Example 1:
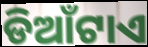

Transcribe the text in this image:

ଡିଆଁଟାଏ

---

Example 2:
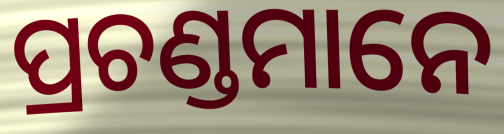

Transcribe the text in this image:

ପ୍ରଚଣ୍ଡମାନେ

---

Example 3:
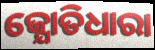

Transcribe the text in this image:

ଜ୍ଯୋତିଧାରା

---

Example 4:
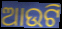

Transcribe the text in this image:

ଆଉଟି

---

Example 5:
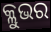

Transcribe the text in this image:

କ୍ଲୁଭର